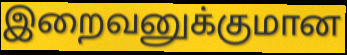
இறைவனுக்குமான